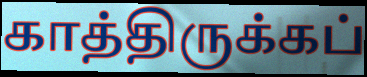
காத்திருக்கப்